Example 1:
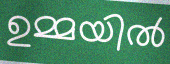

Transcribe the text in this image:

ഉമ്മയിൽ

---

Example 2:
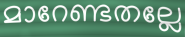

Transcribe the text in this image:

മാറേണ്ടതല്ലേ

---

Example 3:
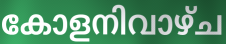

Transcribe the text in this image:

കോളനിവാഴ്ച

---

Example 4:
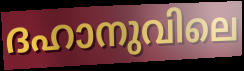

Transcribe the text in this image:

ദഹാനുവിലെ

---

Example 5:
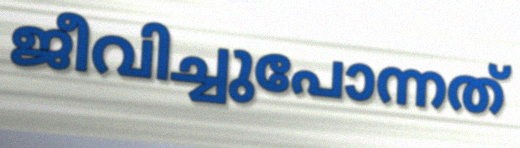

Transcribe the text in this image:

ജീവിച്ചുപോന്നത്